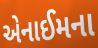
એનાઈમના